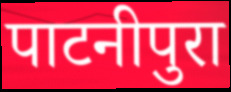
पाटनीपुरा